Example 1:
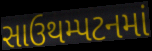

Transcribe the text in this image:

સાઉથમ્પટનમાં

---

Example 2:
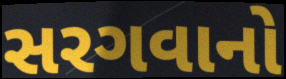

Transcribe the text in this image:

સરગવાનો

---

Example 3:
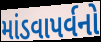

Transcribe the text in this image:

માંડવાપર્વનો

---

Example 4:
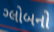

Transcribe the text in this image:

ગ્લોબનો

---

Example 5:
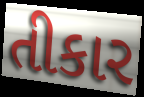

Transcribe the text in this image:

તીકાર